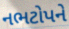
નભટોપને